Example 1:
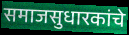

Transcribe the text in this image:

समाजसुधारकांचे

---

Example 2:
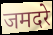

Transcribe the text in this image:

जमदरे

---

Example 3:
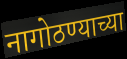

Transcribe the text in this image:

नागोठण्याच्या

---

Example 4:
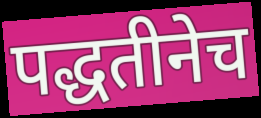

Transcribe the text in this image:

पद्धतीनेच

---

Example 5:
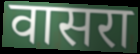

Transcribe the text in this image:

वासरा